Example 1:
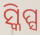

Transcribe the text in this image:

ସ୍କିପ୍ସ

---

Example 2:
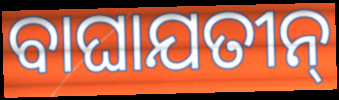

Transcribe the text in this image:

ବାଘାଯତୀନ୍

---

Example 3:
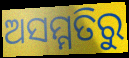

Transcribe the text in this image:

ଅସମ୍ମତିରୁ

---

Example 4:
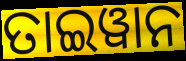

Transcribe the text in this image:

ତାଇୱାନ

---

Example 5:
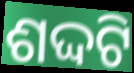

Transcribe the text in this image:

ଶଦ୍ଦଟି